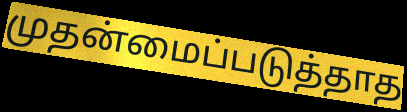
முதன்மைப்படுத்தாத